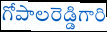
గోపాలరెడ్డిగారి